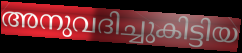
അനുവദിച്ചുകിട്ടിയ